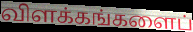
விளக்கங்களைப்